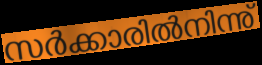
സർക്കാരിൽനിന്നു്